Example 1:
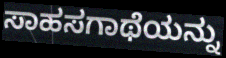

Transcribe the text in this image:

ಸಾಹಸಗಾಥೆಯನ್ನು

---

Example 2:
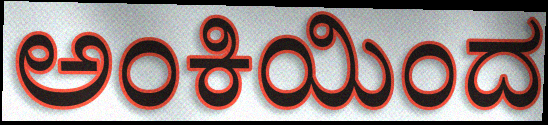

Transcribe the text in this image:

ಅಂಕಿಯಿಂದ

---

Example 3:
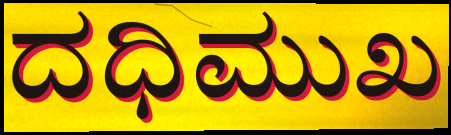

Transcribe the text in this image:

ದಧಿಮುಖ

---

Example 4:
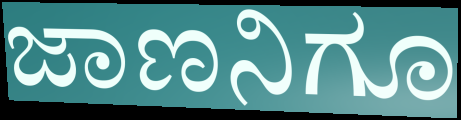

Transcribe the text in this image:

ಜಾಣನಿಗೂ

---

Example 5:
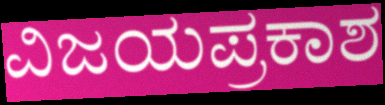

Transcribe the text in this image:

ವಿಜಯಪ್ರಕಾಶ